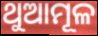
ଥୁଆମୂଳ